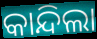
କାନ୍ଦିଲା